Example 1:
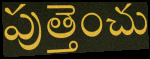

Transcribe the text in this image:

పుత్తెంచు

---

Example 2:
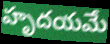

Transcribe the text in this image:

హృదయమే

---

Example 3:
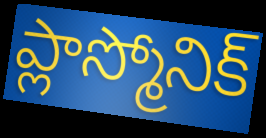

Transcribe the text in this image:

ప్లాస్మోనిక్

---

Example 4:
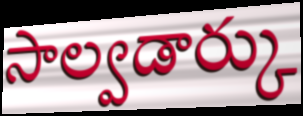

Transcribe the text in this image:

సాల్వడార్కు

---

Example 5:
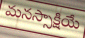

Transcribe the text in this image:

మనస్సాక్షియే